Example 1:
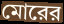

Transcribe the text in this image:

মোরের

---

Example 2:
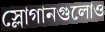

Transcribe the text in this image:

স্লোগানগুলোও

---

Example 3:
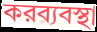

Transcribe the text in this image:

করব্যবস্থা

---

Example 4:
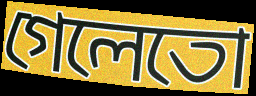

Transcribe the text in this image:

গেলেতো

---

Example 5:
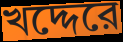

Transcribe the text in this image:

খদ্দেরে